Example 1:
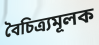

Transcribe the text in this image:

বৈচিত্ৰ্যমূলক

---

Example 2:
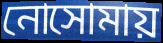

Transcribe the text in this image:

নোসোমায়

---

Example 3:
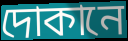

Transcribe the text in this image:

দোকানে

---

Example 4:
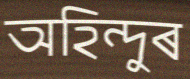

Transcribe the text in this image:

অহিন্দুৰ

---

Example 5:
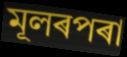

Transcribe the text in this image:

মূলৰপৰা